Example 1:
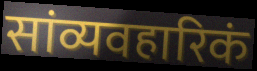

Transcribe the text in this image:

सांव्यवहारिकं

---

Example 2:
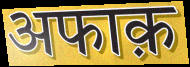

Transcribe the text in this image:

अफाक़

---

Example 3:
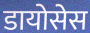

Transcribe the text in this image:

डायोसेस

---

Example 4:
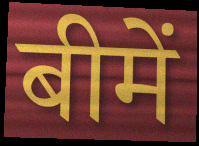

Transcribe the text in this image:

बीमें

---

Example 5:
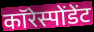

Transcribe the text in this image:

कॉरेस्पोंडेंट